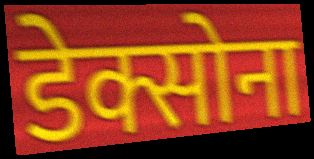
डेक्सोना